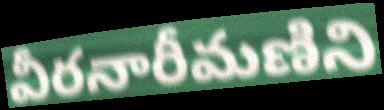
వీరనారీమణిని